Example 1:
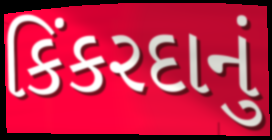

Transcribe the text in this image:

કિંકરદાનું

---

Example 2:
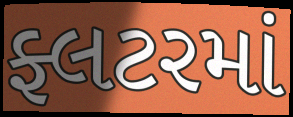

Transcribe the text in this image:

ફ્લટરમાં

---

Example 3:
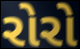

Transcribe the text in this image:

રોરો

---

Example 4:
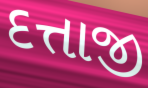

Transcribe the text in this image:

દત્તાજી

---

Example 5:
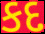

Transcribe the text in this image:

કદ